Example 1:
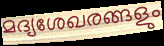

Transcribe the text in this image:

മദ്യശേഖരങ്ങളും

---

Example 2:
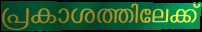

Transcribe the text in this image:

പ്രകാശത്തിലേക്ക്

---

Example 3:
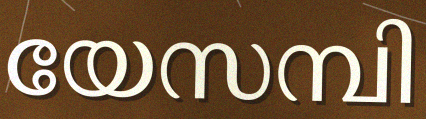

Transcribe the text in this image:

യേസമ്പി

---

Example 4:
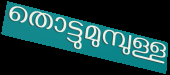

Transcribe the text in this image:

തൊട്ടുമുമ്പുള്ള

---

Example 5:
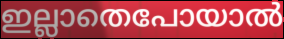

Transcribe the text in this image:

ഇല്ലാതെപോയാൽ